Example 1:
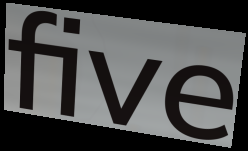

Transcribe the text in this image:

five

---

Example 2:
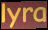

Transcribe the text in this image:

lyra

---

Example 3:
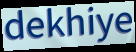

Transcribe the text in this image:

dekhiye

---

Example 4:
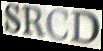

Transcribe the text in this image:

SRCD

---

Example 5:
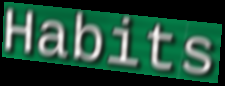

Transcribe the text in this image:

Habits